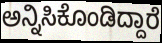
ಅನ್ನಿಸಿಕೊಂಡಿದ್ದಾರೆ